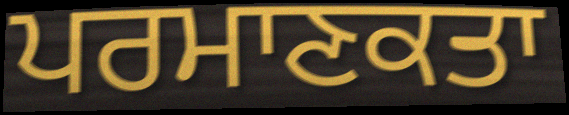
ਪਰਮਾਣਕਤਾ